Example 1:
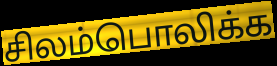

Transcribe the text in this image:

சிலம்பொலிக்க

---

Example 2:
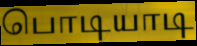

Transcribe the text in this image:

பொடியாடி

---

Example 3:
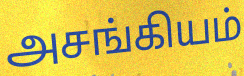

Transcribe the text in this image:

அசங்கியம்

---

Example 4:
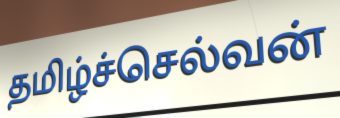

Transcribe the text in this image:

தமிழ்ச்செல்வன்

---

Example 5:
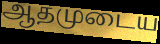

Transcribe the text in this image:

ஆதமுடைய